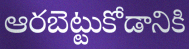
ఆరబెట్టుకోడానికి